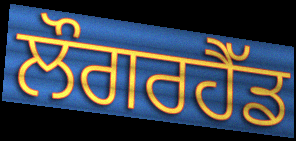
ਲੌਗਰਹੈੱਡ